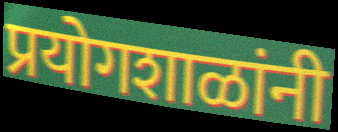
प्रयोगशाळांनी